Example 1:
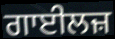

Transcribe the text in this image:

ਗਾਈਲਜ਼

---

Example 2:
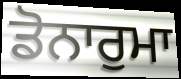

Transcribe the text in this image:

ਡੋਨਾਰੁਮਾ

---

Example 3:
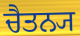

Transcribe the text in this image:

ਚੈਤਨ੍ਯ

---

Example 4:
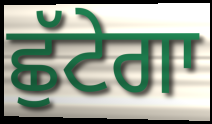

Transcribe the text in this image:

ਛੁੱਟੇਗਾ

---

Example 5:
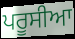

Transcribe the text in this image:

ਪਰੂਸੀਆ